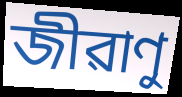
জীৱাণু